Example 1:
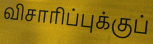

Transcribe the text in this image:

விசாரிப்புக்குப்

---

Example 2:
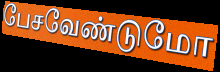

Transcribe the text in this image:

பேசவேண்டுமோ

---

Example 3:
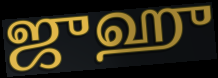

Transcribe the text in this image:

ஜுஹு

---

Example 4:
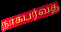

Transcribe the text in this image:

நாகபர்வத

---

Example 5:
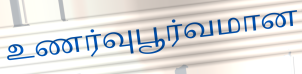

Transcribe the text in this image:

உணர்வுபூர்வமான